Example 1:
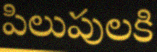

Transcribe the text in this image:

పిలుపులకి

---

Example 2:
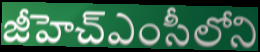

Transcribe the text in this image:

జీహెచ్ఎంసీలోని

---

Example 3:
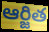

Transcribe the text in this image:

ఆర్జిత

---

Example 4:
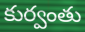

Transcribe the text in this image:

కుర్వంతు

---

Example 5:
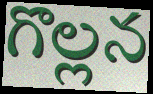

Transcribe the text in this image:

గొల్లన